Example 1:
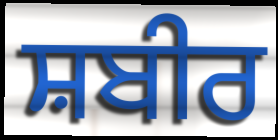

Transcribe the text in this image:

ਸ਼ਬੀਰ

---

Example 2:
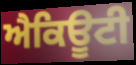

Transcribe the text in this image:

ਐਕਿਊਟੀ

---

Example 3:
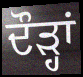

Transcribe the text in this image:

ਦੌੜ੍ਹਾਂ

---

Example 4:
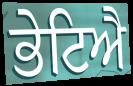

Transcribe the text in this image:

ਭੇਟਿਐ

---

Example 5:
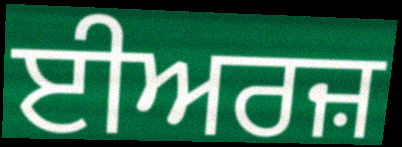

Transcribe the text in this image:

ਈਅਰਜ਼